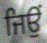
ਜਿਉਂ